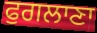
ਫੁਗਲਾਣਾ